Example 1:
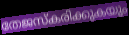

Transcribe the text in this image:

തേജസ്കരിക്കുകയും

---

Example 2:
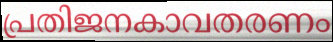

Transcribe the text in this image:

പ്രതിജനകാവതരണം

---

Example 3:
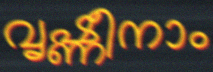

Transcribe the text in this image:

വൃഷ്ണീനാം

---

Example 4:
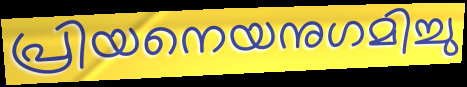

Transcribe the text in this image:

പ്രിയനെയനുഗമിച്ചു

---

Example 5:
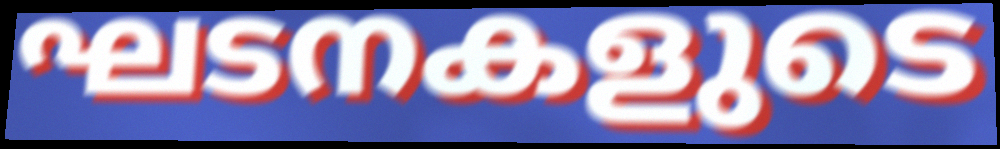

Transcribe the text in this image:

ഘടനകളുടെ